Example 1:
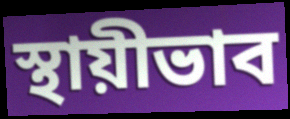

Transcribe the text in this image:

স্থায়ীভাব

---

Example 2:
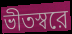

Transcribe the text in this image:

ভীতস্বরে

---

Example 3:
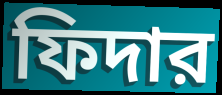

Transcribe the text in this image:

ফিদার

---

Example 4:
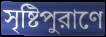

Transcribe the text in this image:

সৃষ্টিপুরাণে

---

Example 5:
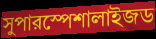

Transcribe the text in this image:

সুপারস্পেশালাইজড